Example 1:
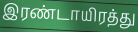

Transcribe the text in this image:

இரண்டாயிரத்து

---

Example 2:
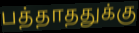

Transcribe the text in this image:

பத்தாததுக்கு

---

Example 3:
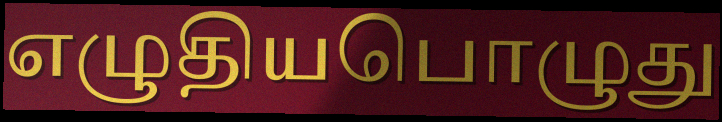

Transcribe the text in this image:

எழுதியபொழுது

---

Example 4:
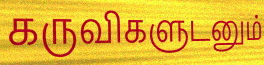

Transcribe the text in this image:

கருவிகளுடனும்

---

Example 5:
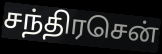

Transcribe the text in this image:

சந்திரசென்